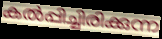
കൽപ്പിച്ചിരിക്കുന്ന